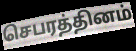
செபரத்தினம்